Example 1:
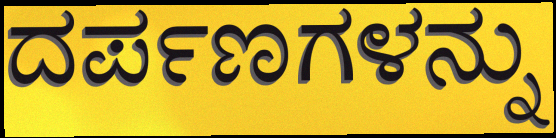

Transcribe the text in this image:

ದರ್ಪಣಗಳನ್ನು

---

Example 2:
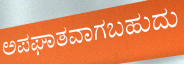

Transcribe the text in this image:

ಅಪಘಾತವಾಗಬಹುದು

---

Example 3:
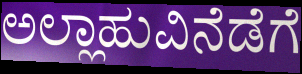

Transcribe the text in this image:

ಅಲ್ಲಾಹುವಿನೆಡೆಗೆ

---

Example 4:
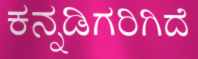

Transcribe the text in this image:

ಕನ್ನಡಿಗರಿಗಿದೆ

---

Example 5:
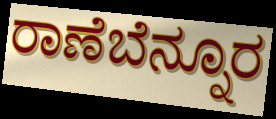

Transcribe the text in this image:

ರಾಣೆಬೆನ್ನೂರ